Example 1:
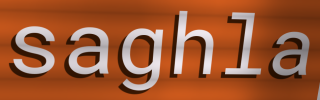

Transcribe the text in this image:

saghla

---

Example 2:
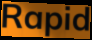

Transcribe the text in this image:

Rapid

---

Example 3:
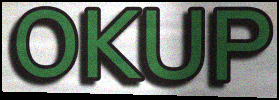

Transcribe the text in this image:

OKUP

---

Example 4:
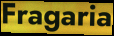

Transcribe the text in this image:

Fragaria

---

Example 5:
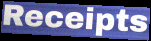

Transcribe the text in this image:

Receipts